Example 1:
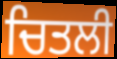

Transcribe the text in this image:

ਚਿਤਲੀ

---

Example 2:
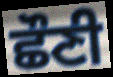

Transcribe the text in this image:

ਛੌਣੀ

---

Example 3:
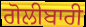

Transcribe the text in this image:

ਗੋਲੀਬਾਰੀ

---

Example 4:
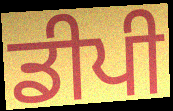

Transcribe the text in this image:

ਡੀਪੀ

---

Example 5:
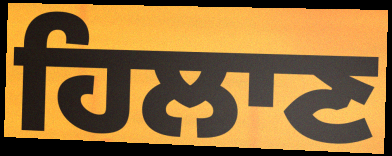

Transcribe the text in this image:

ਹਿਲਾਣ